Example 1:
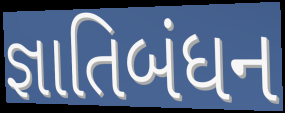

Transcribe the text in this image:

જ્ઞાતિબંધન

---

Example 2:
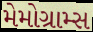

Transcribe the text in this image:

મેમોગ્રામ્સ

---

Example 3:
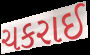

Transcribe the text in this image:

ચકરાઈ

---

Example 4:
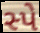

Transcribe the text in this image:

સ્પે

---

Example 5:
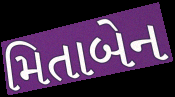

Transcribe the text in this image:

મિતાબેન